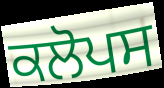
ਕਲੋਪਸ